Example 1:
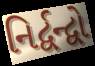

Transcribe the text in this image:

નિર્દ્વન્દ્વો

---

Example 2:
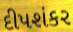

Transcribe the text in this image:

દીપશંકર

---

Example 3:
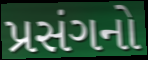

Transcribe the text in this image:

પ્રસંગનો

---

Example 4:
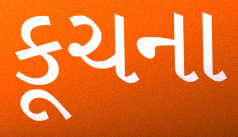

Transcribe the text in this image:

કૂચના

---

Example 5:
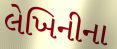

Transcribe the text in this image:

લેખિનીના